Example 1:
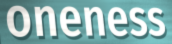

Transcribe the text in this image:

oneness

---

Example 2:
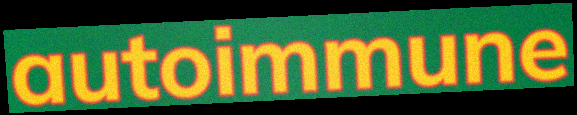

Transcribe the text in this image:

autoimmune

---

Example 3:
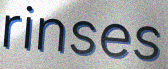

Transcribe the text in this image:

rinses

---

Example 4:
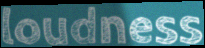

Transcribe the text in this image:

loudness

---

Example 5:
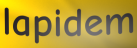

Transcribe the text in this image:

lapidem